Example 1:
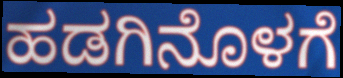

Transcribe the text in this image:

ಹಡಗಿನೊಳಗೆ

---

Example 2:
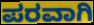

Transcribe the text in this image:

ಪರವಾಗಿ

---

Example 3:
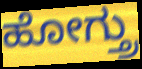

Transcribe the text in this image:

ಹೋಗ್ತ್ರು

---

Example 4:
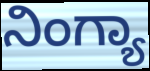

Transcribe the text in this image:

ನಿಂಗ್ಯಾ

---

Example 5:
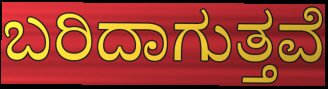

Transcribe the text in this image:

ಬರಿದಾಗುತ್ತವೆ